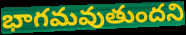
భాగమవుతుందని